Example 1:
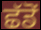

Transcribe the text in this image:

ਛੱਡੋਂ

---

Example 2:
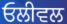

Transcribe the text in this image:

ਓਲੀਵਲ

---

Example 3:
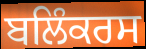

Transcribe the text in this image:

ਬਲਿੰਕਰਸ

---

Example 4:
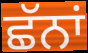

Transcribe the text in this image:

ਛੱਨਾਂ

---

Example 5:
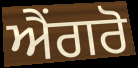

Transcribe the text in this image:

ਐਂਗਰੋ